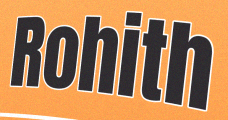
Rohith